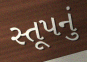
સ્તૂપનું